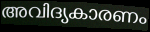
അവിദ്യകാരണം